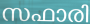
സഫാരി